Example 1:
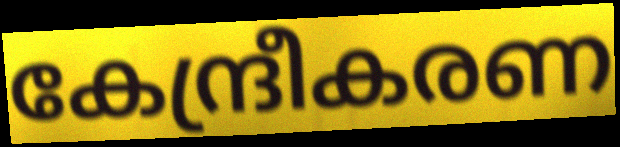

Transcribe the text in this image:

കേന്ദ്രീകരണ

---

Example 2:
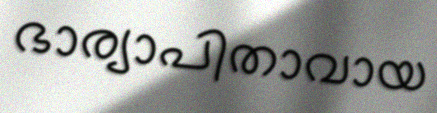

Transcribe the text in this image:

ഭാര്യാപിതാവായ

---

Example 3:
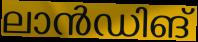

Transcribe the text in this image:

ലാൻഡിങ്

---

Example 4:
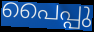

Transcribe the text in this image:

പൈപ്പു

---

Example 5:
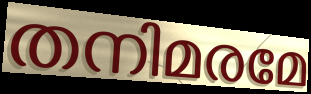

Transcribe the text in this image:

തനിമരമേ